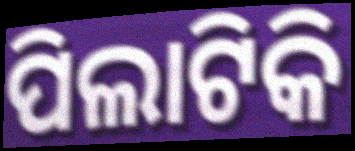
ପିଲାଟିକି